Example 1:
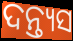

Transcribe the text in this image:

ଦନ୍ତ୍ୟସ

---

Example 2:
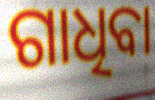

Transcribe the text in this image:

ଗାଧିବା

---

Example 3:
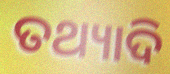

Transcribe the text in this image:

ତଥ୍ୟାଦି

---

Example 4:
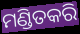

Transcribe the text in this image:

ମଣ୍ଡିତକରି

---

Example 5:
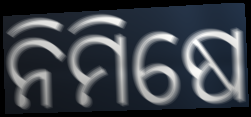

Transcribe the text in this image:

ନିମିଷେ